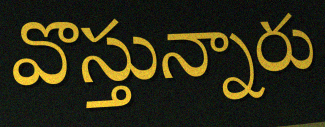
వొస్తున్నారు